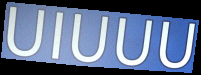
UIUUU